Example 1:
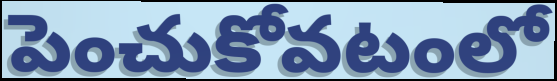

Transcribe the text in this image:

పెంచుకోవటంలో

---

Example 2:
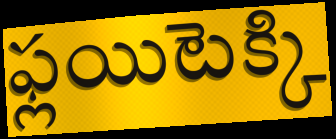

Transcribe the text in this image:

ఫ్లయిటెక్కి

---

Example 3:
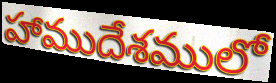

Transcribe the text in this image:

హాముదేశములో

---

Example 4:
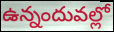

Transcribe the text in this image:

ఉన్నందువల్లో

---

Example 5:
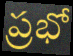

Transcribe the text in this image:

ప్రభో